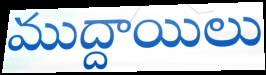
ముద్దాయిలు